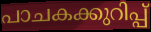
പാചകക്കുറിപ്പ്